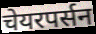
चेयरपर्सन